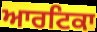
ਆਰਟਿਕਾ